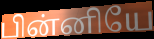
பின்னியே